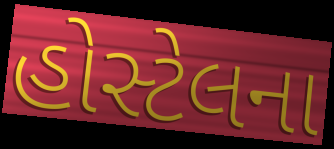
હોસ્ટેલના